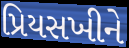
પ્રિયસખીને